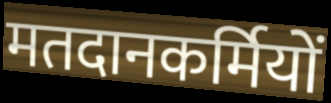
मतदानकर्मियों